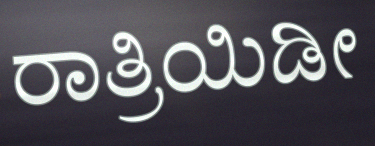
ರಾತ್ರಿಯಿಡೀ